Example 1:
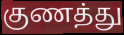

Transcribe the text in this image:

குணத்து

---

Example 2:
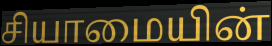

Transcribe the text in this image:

சியாமையின்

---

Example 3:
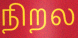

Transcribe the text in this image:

நிறல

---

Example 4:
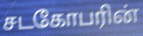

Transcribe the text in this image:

சடகோபரின்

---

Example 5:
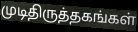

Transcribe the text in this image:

முடிதிருத்தகங்கள்